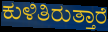
ಕುಳಿತಿರುತ್ತಾರೆ